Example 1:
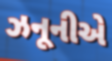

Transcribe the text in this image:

ઝનૂનીએ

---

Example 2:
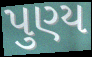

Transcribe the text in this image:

પુણ્ય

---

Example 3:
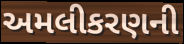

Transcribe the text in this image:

અમલીકરણની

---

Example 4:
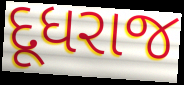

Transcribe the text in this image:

દૂધરાજ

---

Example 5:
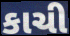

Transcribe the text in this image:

કાચી